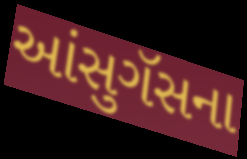
આંસુગૅસના